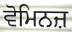
ਵੋਮਿਨਜ਼